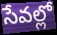
సేవల్లో